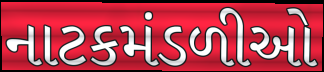
નાટકમંડળીઓ